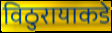
विठुरायाकडे